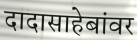
दादासाहेबांवर